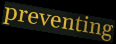
preventing